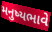
મનુષ્યભાવે